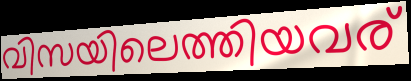
വിസയിലെത്തിയവര്